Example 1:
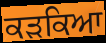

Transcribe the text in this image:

ਕੜਕਿਆ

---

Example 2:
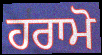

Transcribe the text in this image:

ਹਰਾਮੋ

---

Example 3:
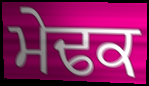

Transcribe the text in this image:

ਮੇਢਕ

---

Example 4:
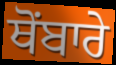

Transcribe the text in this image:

ਥੋਂਬਾਰੇ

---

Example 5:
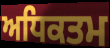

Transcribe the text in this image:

ਅਧਿਕਤਮ